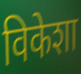
विकेशा